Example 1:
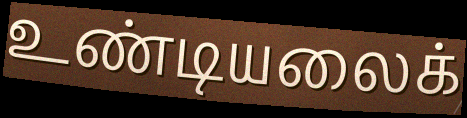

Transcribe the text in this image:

உண்டியலைக்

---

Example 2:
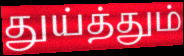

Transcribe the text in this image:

துய்த்தும்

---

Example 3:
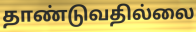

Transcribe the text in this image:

தாண்டுவதில்லை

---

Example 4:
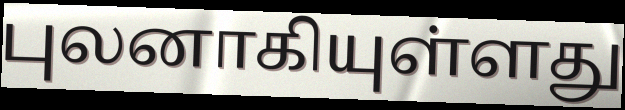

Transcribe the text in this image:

புலனாகியுள்ளது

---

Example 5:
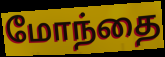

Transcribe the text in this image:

மோந்தை